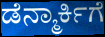
ಡೆನ್ಮಾರ್ಕಿಗೆ